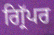
ਗ੍ਰਿੱਪਰ